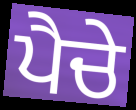
ਪੈਚੇ